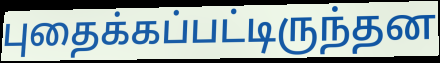
புதைக்கப்பட்டிருந்தன